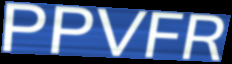
PPVFR